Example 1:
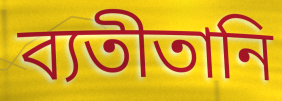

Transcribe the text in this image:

ব্যতীতানি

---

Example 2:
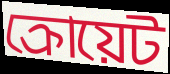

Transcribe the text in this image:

ক্রোয়েট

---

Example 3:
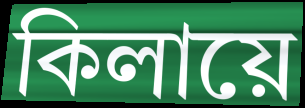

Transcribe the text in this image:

কিলায়ে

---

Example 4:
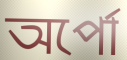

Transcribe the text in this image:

অর্পো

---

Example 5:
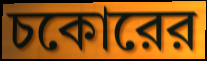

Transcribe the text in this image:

চকোরের